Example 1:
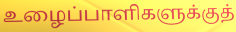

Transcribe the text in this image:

உழைப்பாளிகளுக்குத்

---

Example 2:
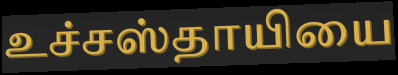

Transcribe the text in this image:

உச்சஸ்தாயியை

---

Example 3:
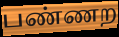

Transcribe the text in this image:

பண்ணற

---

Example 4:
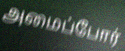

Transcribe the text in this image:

அமைப்போர்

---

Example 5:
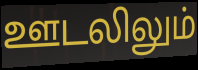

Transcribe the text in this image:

ஊடலிலும்